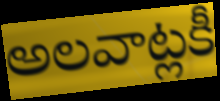
అలవాట్లకీ